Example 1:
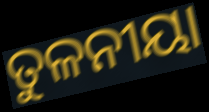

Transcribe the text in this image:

ତୁଳନୀୟା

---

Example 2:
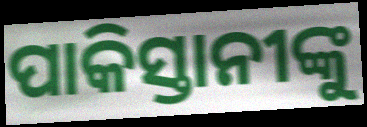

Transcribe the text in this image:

ପାକିସ୍ତାନୀଙ୍କୁ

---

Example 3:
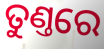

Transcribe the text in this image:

ତୁଣ୍ତରେ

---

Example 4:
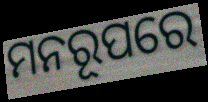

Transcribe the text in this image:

ମନରୂପରେ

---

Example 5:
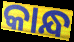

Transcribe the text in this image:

କାନ୍ଧ